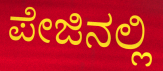
ಪೇಜಿನಲ್ಲಿ